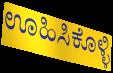
ಊಹಿಸಿಕೊಳ್ಳಿ